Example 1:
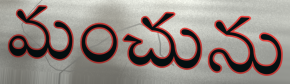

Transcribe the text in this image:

మంచును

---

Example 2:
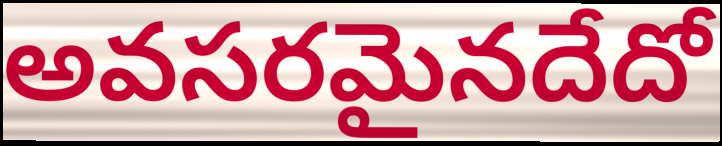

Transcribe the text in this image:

అవసరమైనదేదో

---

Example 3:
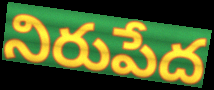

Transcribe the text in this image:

నిరుపేద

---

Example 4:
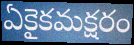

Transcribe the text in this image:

ఏకైకమక్షరం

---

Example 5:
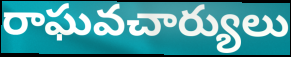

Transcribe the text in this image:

రాఘవచార్యులు